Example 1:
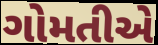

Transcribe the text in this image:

ગોમતીએ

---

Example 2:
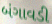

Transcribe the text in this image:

બંગાવડી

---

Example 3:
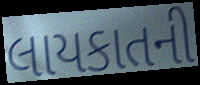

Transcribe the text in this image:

લાયકાતની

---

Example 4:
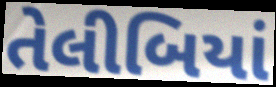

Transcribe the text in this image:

તેલીબિયાં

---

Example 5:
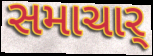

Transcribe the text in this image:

સમાચાર્